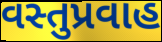
વસ્તુપ્રવાહ